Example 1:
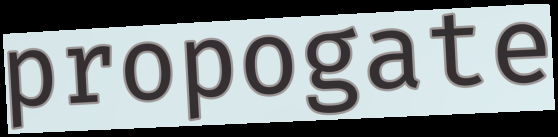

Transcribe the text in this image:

propogate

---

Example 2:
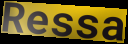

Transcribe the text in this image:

Ressa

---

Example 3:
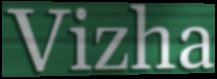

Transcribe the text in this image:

Vizha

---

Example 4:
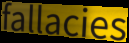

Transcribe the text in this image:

fallacies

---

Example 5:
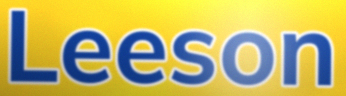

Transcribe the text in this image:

Leeson